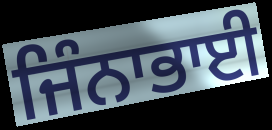
ਜਿੰਨਾਭਾਈ